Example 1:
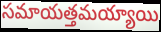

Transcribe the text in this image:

సమాయత్తమయ్యాయి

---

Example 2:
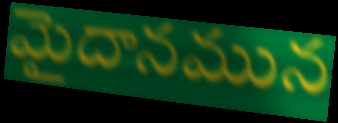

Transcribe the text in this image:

మైదానమున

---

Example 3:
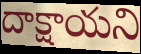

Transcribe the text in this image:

దాక్షాయని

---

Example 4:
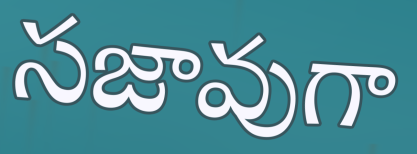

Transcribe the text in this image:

సజావుగా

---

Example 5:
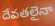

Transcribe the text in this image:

దేవతలైనా